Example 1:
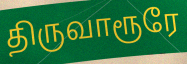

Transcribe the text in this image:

திருவாரூரே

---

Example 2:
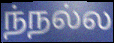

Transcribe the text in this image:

ந்நல்ல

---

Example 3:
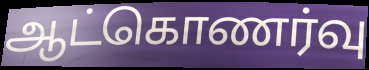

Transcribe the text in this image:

ஆட்கொணர்வு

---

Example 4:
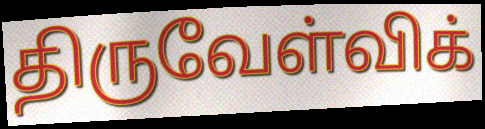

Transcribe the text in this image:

திருவேள்விக்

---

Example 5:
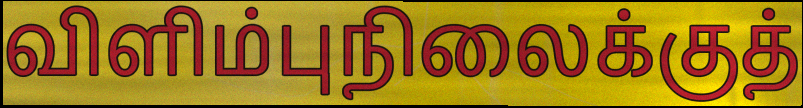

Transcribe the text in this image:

விளிம்புநிலைக்குத்